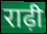
राढ़ी